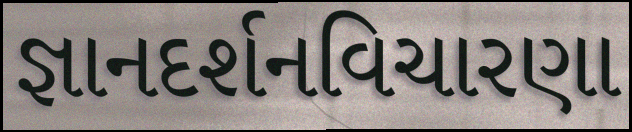
જ્ઞાનદર્શનવિચારણા